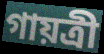
গায়ত্রী